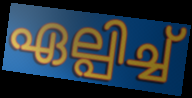
ഏല്പിച്ച്